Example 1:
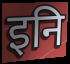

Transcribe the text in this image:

इनि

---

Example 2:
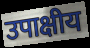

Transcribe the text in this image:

उपाक्षीय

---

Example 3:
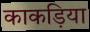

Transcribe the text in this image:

काकड़िया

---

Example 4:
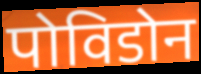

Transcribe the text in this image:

पोविडोन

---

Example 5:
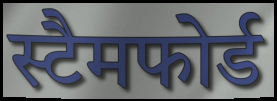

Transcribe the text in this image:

स्टैमफोर्ड